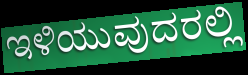
ಇಳಿಯುವುದರಲ್ಲಿ